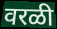
वरळी